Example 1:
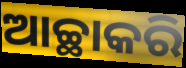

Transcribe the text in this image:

ଆଚ୍ଛାକରି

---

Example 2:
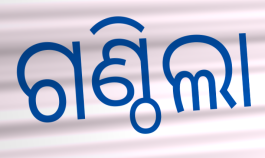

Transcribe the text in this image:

ଗଣ୍ଠିଲା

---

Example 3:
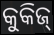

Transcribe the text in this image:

କୁକିଜ୍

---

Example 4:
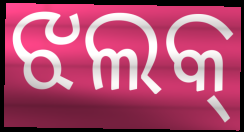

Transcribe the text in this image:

ଝଲକ୍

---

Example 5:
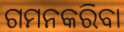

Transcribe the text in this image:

ଗମନକରିବା